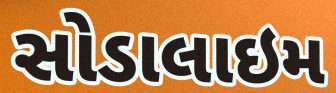
સોડાલાઇમ